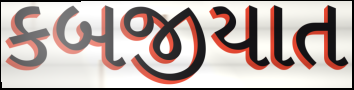
કબજીયાત